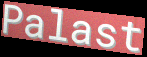
Palast